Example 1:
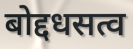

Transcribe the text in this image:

बोद्दधसत्व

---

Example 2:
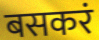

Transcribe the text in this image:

बसकरं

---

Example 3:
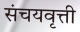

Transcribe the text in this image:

संचयवृत्ती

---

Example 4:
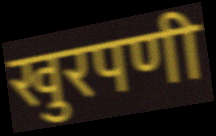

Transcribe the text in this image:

खुरपणी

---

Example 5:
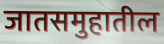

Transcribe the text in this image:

जातसमुहातील